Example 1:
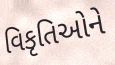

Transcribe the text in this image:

વિકૃતિઓને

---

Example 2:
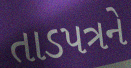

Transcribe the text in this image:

તાડપત્રને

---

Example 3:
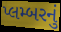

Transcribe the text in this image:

પ્લમ્બરનું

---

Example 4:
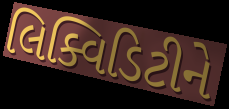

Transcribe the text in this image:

લિક્વિડિટીને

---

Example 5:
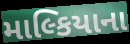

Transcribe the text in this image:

માલ્કિયાના